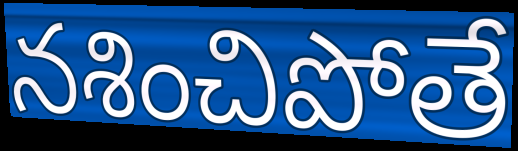
నశించిపోతే